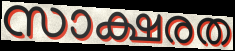
സാക്ഷരത